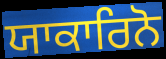
ਯਾਕਾਰਿਨੋ